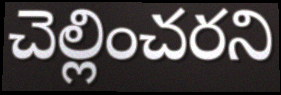
చెల్లించరని